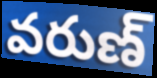
వరుణ్